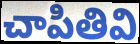
చాపితివి